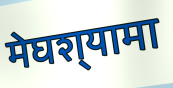
मेघश्यामा